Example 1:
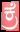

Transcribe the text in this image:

ಕ್ರೆ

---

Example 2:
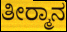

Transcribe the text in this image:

ತೀರ‍್ಮಾನ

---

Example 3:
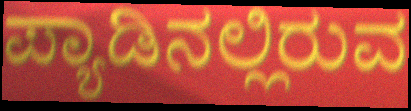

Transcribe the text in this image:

ಪ್ಯಾಡಿನಲ್ಲಿರುವ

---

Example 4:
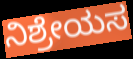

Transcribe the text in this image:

ನಿಶ್ರೇಯಸ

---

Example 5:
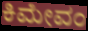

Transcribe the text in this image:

ಕಿಮೇವಂ